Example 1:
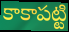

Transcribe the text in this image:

కాకాపట్టి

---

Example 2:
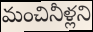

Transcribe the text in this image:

మంచినీళ్లని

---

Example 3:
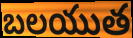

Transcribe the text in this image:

బలయుత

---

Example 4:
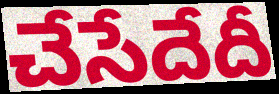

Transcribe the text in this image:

చేసేదేదీ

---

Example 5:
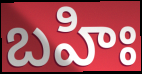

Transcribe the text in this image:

బహిః